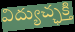
విద్యుచ్ఛక్తి